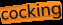
cocking